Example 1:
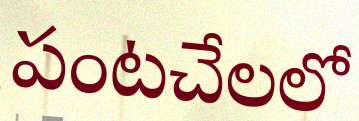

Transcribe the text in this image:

పంటచేలలో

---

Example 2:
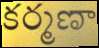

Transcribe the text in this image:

కర్మణా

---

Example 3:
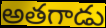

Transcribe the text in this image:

అతగాడు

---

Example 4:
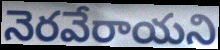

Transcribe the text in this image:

నెరవేరాయని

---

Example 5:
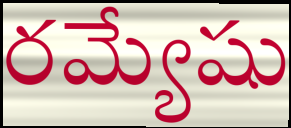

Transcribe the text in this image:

రమ్యేషు